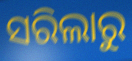
ସରିଲାରୁ